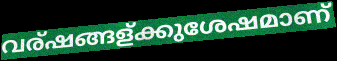
വര്ഷങ്ങള്ക്കുശേഷമാണ്